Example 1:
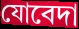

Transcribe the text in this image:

যোবেদা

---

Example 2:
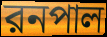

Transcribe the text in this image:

রনপাল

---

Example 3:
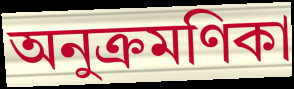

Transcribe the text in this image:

অনুক্রমণিকা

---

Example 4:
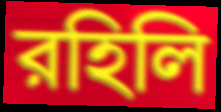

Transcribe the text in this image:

রহিলি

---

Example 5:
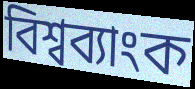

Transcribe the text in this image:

বিশ্বব্যাংক